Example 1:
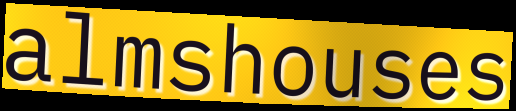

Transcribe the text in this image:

almshouses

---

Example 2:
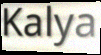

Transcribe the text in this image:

Kalya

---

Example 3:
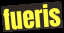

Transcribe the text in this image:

fueris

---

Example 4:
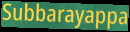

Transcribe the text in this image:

Subbarayappa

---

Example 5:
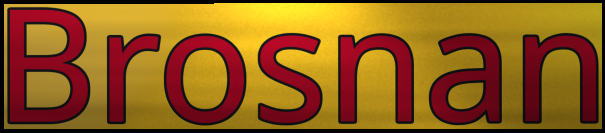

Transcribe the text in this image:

Brosnan